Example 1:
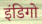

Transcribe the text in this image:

इंडिगो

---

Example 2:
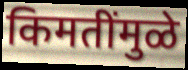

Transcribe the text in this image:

किमतींमुळे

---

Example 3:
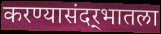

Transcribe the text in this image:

करण्यासंदर्भातला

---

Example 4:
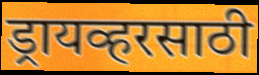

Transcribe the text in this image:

ड्रायव्हरसाठी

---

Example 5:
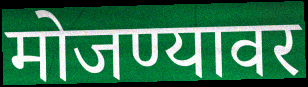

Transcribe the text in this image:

मोजण्यावर